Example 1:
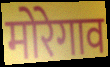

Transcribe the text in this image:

मोरेगाव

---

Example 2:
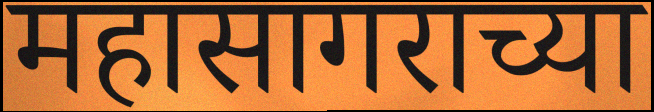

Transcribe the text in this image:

महासागराच्या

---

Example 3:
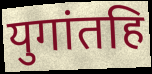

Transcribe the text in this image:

युगांतहि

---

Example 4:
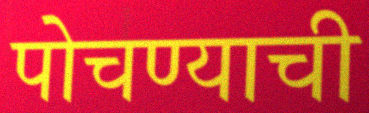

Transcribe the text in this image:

पोचण्याची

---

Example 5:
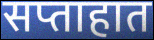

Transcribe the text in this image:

सप्ताहात